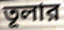
তূলার